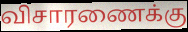
விசாரணைக்கு